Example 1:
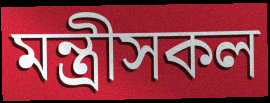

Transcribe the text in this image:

মন্ত্ৰীসকল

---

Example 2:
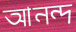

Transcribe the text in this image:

আনন্দ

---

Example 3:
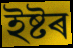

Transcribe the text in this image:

ইষ্টৰ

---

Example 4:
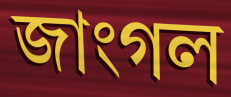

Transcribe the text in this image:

জাংগল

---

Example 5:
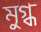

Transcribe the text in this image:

মুগ্ধ